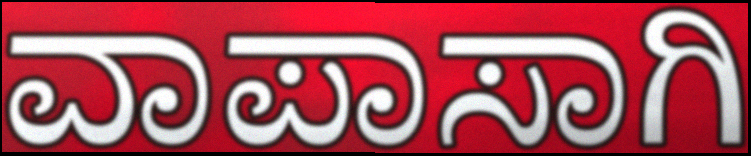
ವಾಪಾಸಾಗಿ